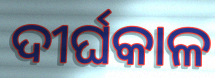
ଦୀର୍ଘକାଳ